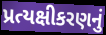
પ્રત્યક્ષીકરણનું